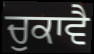
ਚੁਕਾਵੈ